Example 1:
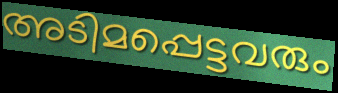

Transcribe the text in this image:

അടിമപ്പെട്ടവരും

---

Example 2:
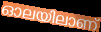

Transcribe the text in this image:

ഓലയിലാണ്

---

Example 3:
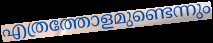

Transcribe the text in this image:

എത്രത്തോളമുണ്ടെന്നും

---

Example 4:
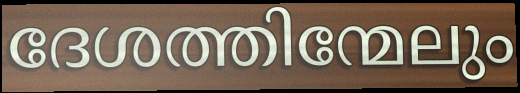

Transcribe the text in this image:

ദേശത്തിന്മേലും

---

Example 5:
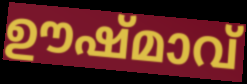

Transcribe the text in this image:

ഊഷ്മാവ്